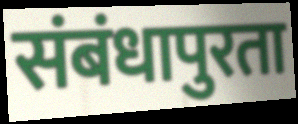
संबंधापुरता